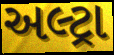
અલ્ટ્રા